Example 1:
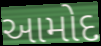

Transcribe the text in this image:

આમોદ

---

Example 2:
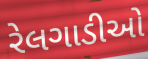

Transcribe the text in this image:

રેલગાડીઓ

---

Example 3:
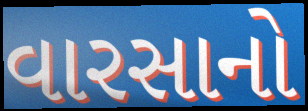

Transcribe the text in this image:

વારસાનો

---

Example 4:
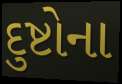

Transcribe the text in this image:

દુષ્ટોના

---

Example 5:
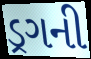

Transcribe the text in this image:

ડ્રગની